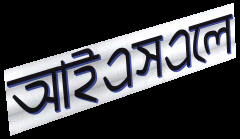
আইএসএলে